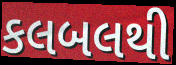
કલબલથી